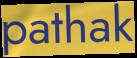
pathak